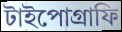
টাইপোগ্রাফি